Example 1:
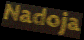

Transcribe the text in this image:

Nadoja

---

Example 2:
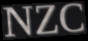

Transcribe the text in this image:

NZC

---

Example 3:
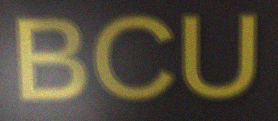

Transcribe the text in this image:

BCU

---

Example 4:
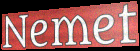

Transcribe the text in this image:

Nemet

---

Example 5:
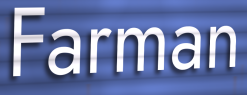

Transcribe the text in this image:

Farman